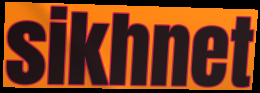
sikhnet